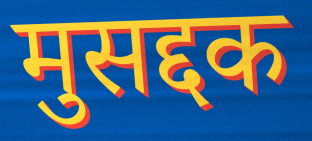
मुसद्दक